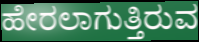
ಹೇರಲಾಗುತ್ತಿರುವ